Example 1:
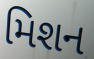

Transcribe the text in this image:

મિશન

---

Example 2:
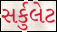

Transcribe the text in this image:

સર્કુલેટ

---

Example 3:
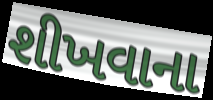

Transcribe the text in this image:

શીખવાના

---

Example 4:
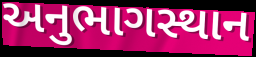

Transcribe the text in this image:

અનુભાગસ્થાન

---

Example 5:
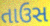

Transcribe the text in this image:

તાઉસ